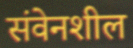
संवेनशील